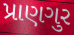
પ્રાણગુર